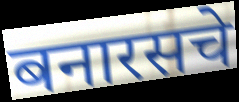
बनारसचे